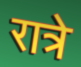
रात्रे